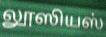
லூஸியஸ்